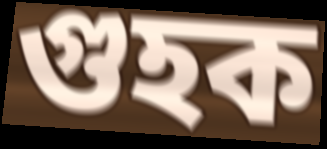
গুহক